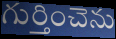
గుర్తించెను